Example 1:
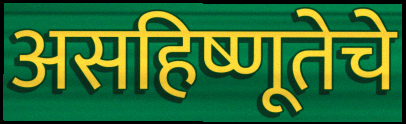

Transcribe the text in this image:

असहिष्णूतेचे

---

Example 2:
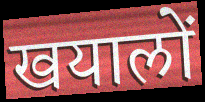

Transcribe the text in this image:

खयालों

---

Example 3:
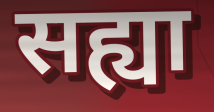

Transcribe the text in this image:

सह्या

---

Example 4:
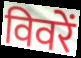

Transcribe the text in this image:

विवरें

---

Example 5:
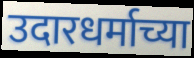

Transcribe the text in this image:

उदारधर्माच्या